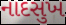
નાદસુખ